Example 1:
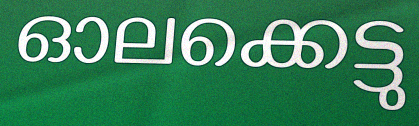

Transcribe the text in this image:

ഓലക്കെട്ടു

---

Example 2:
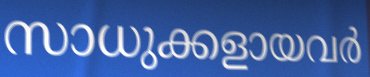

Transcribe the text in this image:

സാധുക്കളായവർ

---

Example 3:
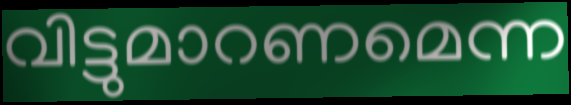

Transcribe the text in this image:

വിട്ടുമാറണമെന്ന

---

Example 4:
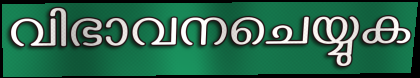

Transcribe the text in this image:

വിഭാവനചെയ്യുക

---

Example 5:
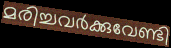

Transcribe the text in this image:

മരിച്ചവർക്കുവേണ്ടി